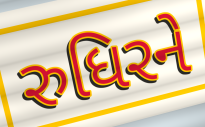
રુધિરને